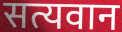
सत्यवान